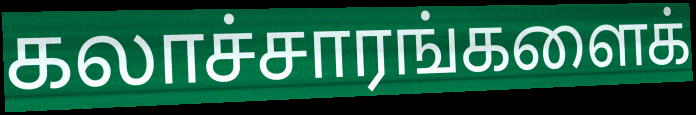
கலாச்சாரங்களைக்